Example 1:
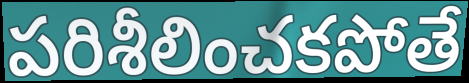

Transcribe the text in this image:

పరిశీలించకపోతే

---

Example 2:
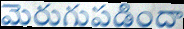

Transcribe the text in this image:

మెరుగుపడిందా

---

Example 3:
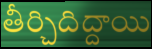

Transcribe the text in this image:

తీర్చిదిద్దాయి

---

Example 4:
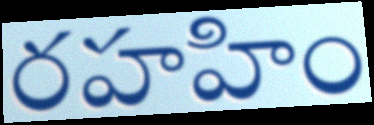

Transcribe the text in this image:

రహహిం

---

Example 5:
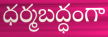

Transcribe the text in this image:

ధర్మబద్ధంగా